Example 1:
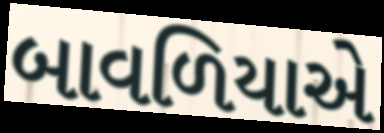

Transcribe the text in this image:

બાવળિયાએ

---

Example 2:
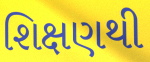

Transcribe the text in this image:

શિક્ષણથી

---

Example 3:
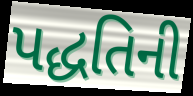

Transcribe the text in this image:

પદ્ધતિની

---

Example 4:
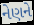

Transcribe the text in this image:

નેણને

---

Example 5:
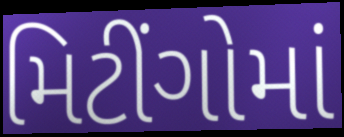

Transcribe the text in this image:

મિટીંગોમાં